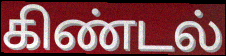
கிண்டல்